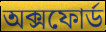
অক্সফোৰ্ড